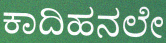
ಕಾದಿಹನಲೇ